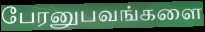
பேரனுபவங்களை